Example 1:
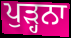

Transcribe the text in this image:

ਪੁੜ੍ਹਨਾ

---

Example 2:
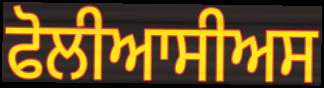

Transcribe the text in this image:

ਫੋਲੀਆਸੀਅਸ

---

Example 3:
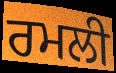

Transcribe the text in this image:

ਰਮਲੀ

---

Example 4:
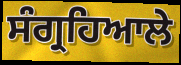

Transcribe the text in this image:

ਸੰਗ੍ਰਹਿਆਲੇ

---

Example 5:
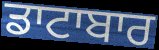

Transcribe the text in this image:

ਡਾਟਾਬਾਰ